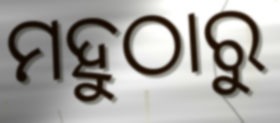
ମହୁଠାରୁ